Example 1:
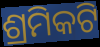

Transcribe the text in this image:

ଶ୍ରମିକଟି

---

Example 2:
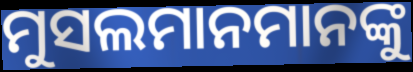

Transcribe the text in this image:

ମୁସଲମାନମାନଙ୍କୁ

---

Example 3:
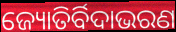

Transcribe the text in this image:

ଜ୍ୟୋତିର୍ବିଦାଭରଣ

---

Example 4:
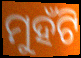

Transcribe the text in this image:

ମୁହଁଟି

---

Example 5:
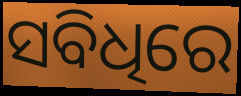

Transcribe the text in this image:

ସବିଧିରେ